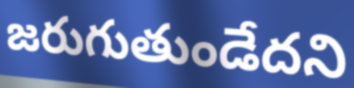
జరుగుతుండేదని